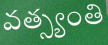
వత్స్యంతి